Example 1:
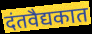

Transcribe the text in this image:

दंतवैद्यकात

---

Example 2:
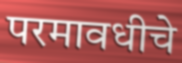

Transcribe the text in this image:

परमावधीचे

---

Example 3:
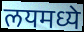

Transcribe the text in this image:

लयमध्ये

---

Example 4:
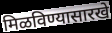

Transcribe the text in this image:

मिळविण्यासारखे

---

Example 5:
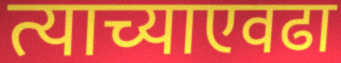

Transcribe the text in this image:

त्याच्याएवढा